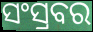
ସଂସ୍ରବର